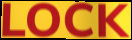
LOCK